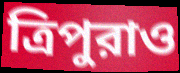
ত্রিপুরাও